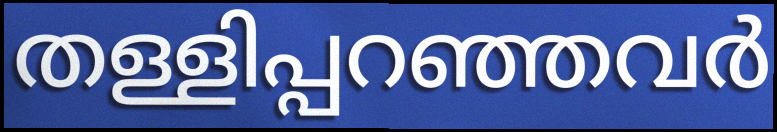
തള്ളിപ്പറഞ്ഞവർ